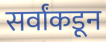
सर्वांकडून